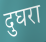
दुघरा